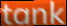
tank